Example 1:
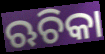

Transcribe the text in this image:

ଋଚିକା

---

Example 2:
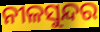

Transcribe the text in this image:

ନୀଳସୁନ୍ଦର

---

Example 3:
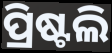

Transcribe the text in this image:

ପ୍ରିଷ୍ଟଲି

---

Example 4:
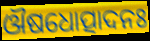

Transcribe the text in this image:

ଔଷଧୋତ୍ପାଦନଃ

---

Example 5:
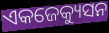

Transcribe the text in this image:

ଏକଜେକ୍ୟୁସନ